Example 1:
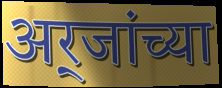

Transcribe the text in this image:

अर्जांच्या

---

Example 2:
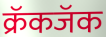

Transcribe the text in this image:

क्रॅकजॅक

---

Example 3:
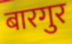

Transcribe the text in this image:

बारगुर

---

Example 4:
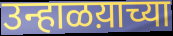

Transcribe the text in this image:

उन्हाळय़ाच्या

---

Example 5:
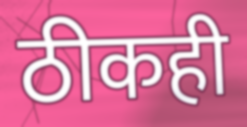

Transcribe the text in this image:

ठीकही